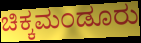
ಚಿಕ್ಕಮಂಡೂರು